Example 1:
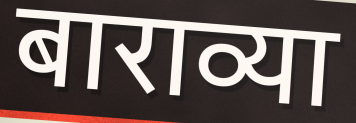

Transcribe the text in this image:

बाराव्या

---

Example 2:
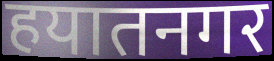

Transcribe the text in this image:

हयातनगर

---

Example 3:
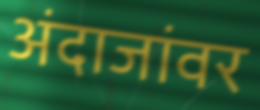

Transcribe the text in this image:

अंदाजांवर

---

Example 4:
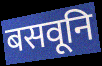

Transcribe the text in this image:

बसवूनि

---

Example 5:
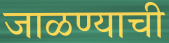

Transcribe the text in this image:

जाळण्याची